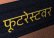
फूटरेस्टवर